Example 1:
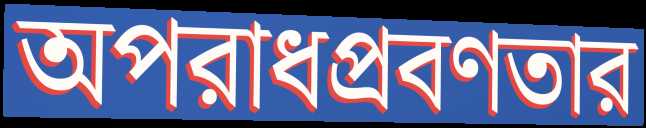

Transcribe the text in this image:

অপরাধপ্রবণতার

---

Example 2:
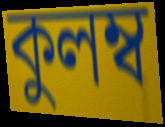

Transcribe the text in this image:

কুলম্ব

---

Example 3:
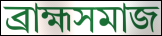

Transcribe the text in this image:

ব্রাহ্মসমাজ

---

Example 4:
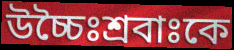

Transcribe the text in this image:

উচ্চৈঃশ্রবাঃকে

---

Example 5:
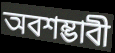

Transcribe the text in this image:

অবশম্ভাবী